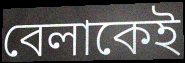
বেলাকেই